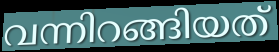
വന്നിറങ്ങിയത്